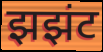
झझंट